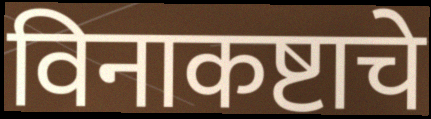
विनाकष्टाचे